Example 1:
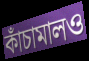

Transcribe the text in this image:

কাঁচামালও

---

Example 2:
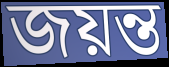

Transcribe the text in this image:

জয়ন্ত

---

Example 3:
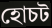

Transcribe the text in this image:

হোচট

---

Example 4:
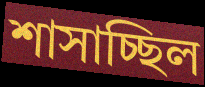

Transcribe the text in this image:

শাসাচ্ছিল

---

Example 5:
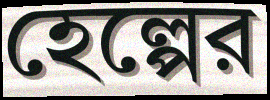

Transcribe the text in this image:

হেল্পের